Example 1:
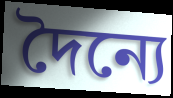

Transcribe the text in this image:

দৈন্যে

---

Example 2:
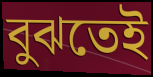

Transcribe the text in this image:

বুঝতেই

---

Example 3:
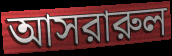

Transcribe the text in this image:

আসরারুল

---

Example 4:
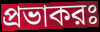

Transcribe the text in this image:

প্রভাকরঃ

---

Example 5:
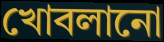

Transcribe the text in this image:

খোবলানো